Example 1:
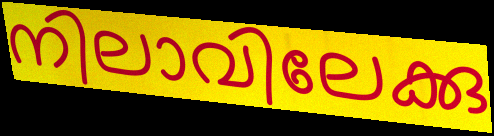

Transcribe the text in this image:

നിലാവിലേക്കു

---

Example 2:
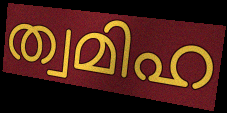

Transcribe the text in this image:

ത്വമിഹ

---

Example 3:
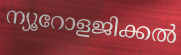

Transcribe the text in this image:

ന്യൂറോളജിക്കൽ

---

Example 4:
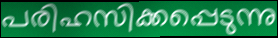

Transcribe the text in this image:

പരിഹസിക്കപ്പെടുന്നു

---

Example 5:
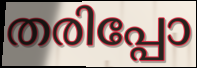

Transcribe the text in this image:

തരിപ്പോ